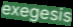
exegesis